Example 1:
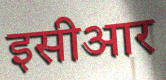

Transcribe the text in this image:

इसीआर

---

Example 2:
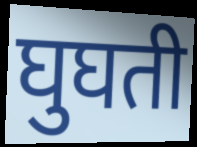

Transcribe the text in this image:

घुघती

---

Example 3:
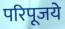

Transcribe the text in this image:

परिपूजये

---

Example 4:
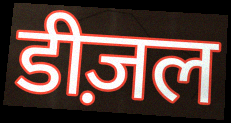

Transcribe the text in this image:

डीज़ल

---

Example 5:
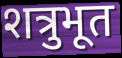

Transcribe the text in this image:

शत्रुभूत